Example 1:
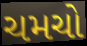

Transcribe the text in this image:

ચમચો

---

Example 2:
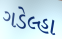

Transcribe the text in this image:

ગડેલ્હા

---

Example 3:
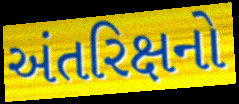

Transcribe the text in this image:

અંતરિક્ષનો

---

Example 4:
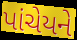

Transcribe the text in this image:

પાંચેયને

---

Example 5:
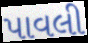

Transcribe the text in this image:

પાવલી